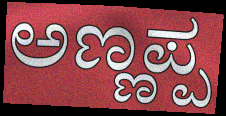
ಅಣ್ಣಪ್ಪ